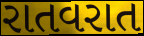
રાતવરાત